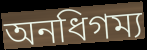
অনধিগম্য